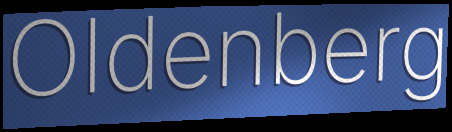
Oldenberg